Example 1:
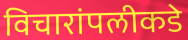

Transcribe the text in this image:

विचारांपलीकडे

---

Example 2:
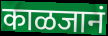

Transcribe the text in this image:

काळजानं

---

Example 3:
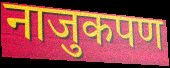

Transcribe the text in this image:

नाजुकपण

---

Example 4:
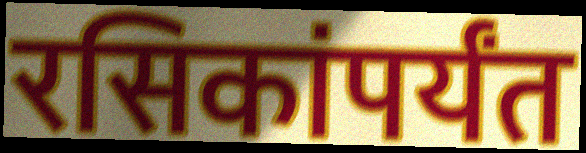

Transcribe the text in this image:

रसिकांपर्यंत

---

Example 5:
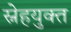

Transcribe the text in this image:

स्नेहयुक्त